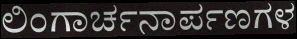
ಲಿಂಗಾರ್ಚನಾರ್ಪಣಗಳ